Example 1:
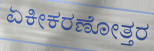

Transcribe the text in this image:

ಏಕೀಕರಣೋತ್ತರ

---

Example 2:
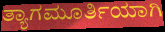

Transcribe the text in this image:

ತ್ಯಾಗಮೂರ್ತಿಯಾಗಿ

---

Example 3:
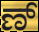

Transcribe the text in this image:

ಣ್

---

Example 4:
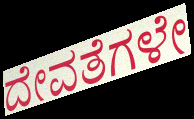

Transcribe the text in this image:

ದೇವತೆಗಳೇ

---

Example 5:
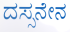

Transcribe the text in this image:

ದಸ್ಸನೇನ